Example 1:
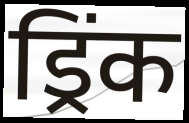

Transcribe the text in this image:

ड्रिंक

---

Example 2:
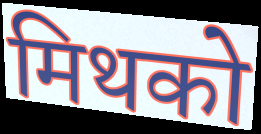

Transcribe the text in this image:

मिथको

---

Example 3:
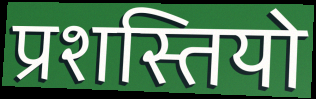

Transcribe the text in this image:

प्रशस्तियो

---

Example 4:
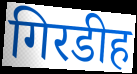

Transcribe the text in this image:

गिरडीह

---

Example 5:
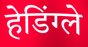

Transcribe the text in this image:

हेडिंग्‍ले